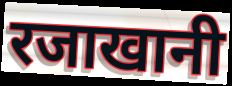
रजाखानी